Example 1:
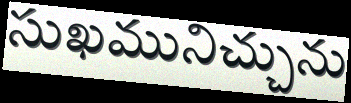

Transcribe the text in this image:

సుఖమునిచ్చును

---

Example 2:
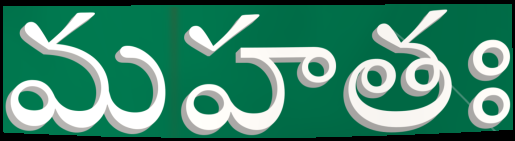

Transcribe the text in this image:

మహతః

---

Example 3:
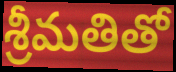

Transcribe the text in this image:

శ్రీమతితో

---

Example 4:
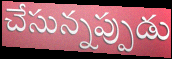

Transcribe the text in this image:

చేసున్నప్పుడు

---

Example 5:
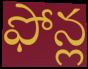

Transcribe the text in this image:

ఫోన్ల